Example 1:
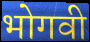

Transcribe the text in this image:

भोगवी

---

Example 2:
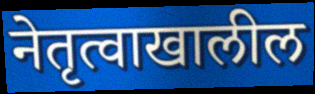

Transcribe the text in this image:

नेतृत्वाखालील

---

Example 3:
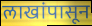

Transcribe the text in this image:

लाखांपासून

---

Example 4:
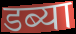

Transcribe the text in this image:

डब्या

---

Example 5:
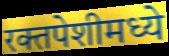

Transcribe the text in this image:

रक्तपेशीमध्ये